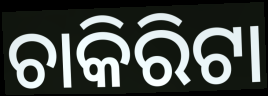
ଚାକିରିଟା